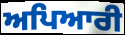
ਅਪਿਆਰੀ